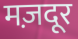
मज़दूर